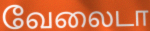
வேலைடா